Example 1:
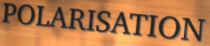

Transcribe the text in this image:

POLARISATION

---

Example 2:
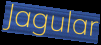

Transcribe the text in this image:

Jagular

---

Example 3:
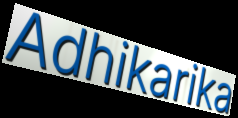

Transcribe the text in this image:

Adhikarika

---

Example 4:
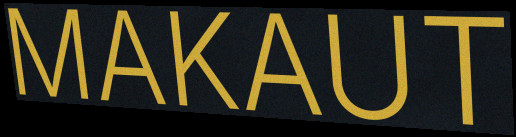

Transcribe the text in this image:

MAKAUT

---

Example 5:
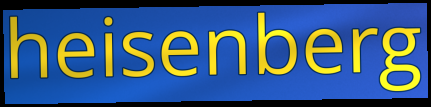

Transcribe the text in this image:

heisenberg